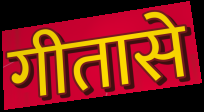
गीतासे